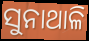
ସୁନାଥାଳି